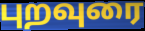
புறவுரை